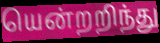
யென்றறிந்து